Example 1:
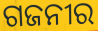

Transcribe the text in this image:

ଗଜନୀର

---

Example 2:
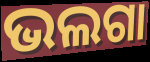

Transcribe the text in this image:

ଭଲଗା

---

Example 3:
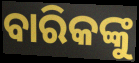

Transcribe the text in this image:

ବାରିକଙ୍କୁ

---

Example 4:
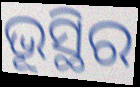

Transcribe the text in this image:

ଭୂସ୍ଥିର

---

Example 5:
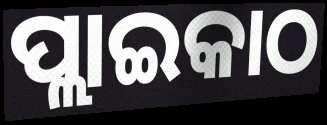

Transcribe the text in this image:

ପ୍ଲାଇକାଠ